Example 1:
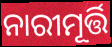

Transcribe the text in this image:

ନାରୀମୂର୍ତ୍ତି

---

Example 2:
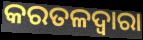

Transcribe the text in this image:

କରତଳଦ୍ୱାରା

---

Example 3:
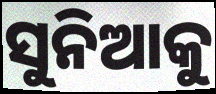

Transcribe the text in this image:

ସୁନିଆକୁ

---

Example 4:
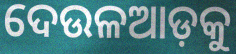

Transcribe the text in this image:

ଦେଉଳଆଡ଼କୁ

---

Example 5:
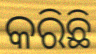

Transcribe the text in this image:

କରିଛି